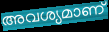
അവശ്യമാണ്